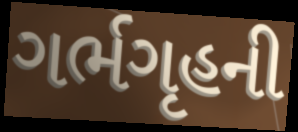
ગર્ભગૃહની